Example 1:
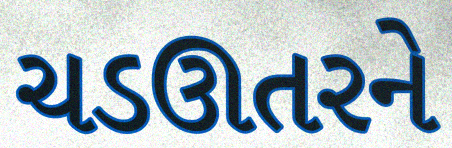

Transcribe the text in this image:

ચડઊતરને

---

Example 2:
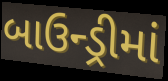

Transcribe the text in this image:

બાઉન્ડ્રીમાં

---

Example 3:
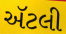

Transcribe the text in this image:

ઍટલી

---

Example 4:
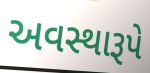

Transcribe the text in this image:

અવસ્થારૂપે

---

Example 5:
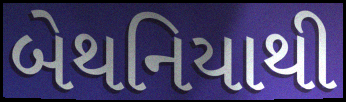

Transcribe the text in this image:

બેથનિયાથી